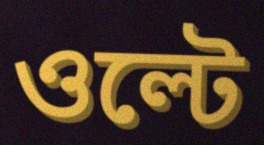
ওল্টে